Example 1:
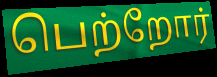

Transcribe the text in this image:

பெற்றோர்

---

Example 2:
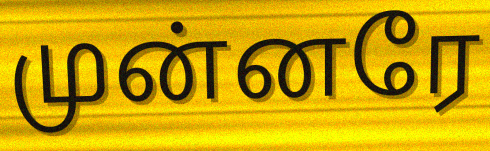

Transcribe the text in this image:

முன்னரே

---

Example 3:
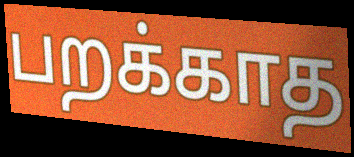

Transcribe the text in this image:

பறக்காத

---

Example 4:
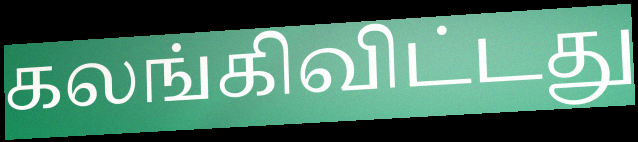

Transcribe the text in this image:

கலங்கிவிட்டது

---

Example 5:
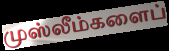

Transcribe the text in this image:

முஸ்லீம்களைப்